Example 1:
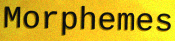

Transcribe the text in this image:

Morphemes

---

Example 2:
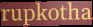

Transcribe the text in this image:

rupkotha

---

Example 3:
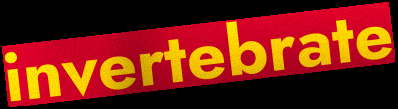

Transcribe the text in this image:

invertebrate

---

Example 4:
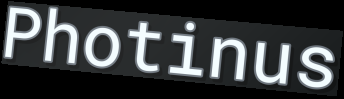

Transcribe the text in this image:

Photinus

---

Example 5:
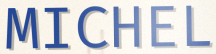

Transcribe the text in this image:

MICHEL